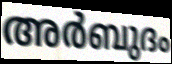
അർബുദം